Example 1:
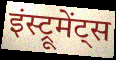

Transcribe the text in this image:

इंस्‍ट्रूमेंट्स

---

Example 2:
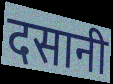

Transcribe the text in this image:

दसानी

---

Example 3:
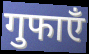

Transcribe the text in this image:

गुफाएँ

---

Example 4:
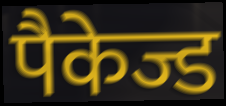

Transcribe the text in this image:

पैकेज्ड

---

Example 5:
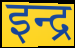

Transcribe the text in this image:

इन्द्र